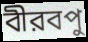
বীরবপু